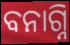
ବନାଗ୍ନି